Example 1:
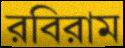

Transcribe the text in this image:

রবিরাম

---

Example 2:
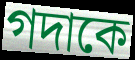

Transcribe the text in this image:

গদাকে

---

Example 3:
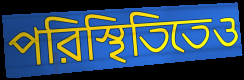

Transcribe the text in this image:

পরিস্থিতিতেও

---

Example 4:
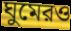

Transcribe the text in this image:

ঘুমেরও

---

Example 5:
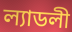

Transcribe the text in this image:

ল্যাডলী